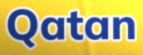
Qatan